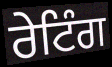
ਰੇਟਿੰਗ